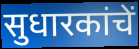
सुधारकांचें